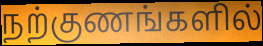
நற்குணங்களில்